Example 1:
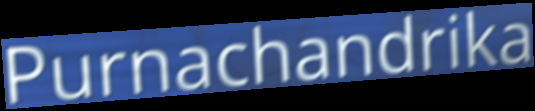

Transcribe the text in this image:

Purnachandrika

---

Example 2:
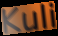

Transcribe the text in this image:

Kuli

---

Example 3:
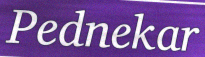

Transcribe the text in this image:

Pednekar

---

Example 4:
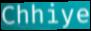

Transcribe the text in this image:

Chhiye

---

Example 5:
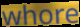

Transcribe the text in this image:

whore